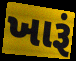
ખારૂં